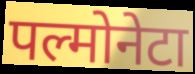
पल्मोनेटा